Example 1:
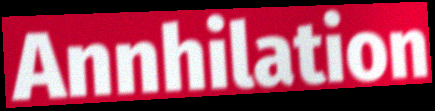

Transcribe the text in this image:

Annhilation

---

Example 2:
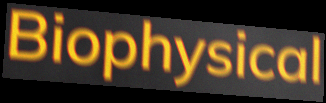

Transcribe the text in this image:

Biophysical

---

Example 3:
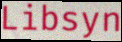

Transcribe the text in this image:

Libsyn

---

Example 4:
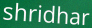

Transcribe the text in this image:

shridhar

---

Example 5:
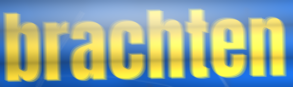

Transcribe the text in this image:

brachten